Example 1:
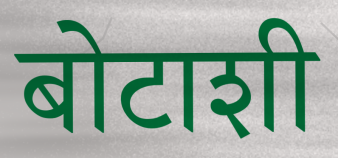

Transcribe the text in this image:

बोटाशी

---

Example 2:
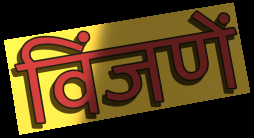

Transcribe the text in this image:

विंजणें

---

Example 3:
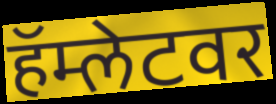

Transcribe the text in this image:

हॅम्लेटवर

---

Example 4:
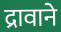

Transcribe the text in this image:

द्रावाने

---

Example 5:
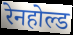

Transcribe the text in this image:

रेनहोल्ड